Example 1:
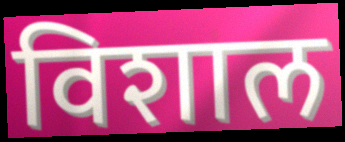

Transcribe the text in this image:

विशाल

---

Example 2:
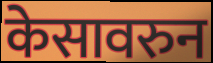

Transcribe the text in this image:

केसावरुन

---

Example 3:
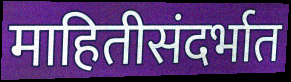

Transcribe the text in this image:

माहितीसंदर्भात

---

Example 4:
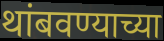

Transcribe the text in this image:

थांबवण्याच्या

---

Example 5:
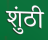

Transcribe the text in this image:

शुंठी